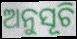
ଅନୁସୂଚି